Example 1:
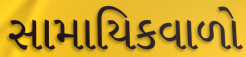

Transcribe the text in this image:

સામાયિકવાળો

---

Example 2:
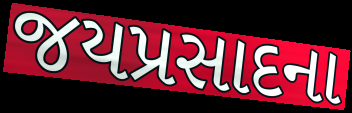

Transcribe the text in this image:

જયપ્રસાદના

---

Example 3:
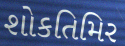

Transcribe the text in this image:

શોકતિમિર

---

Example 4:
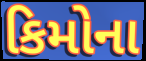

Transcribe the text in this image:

કિમોના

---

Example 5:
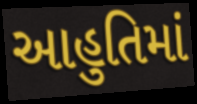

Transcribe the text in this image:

આહુતિમાં